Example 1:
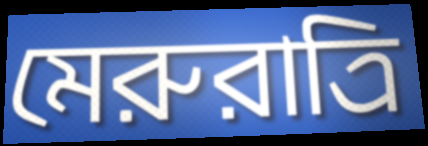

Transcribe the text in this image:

মেরুরাত্রি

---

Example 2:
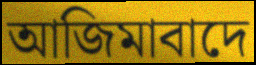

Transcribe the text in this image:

আজিমাবাদে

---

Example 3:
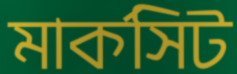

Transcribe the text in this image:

মার্কসিট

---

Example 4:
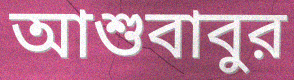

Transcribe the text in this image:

আশুবাবুর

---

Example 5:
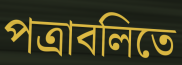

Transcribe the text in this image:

পত্রাবলিতে